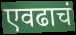
एवढाचं